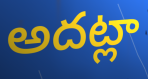
అదట్లా